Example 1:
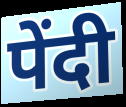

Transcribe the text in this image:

पेंदी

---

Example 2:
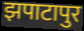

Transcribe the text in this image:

झपाटापुर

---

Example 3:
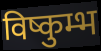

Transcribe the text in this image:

विष्कुम्भ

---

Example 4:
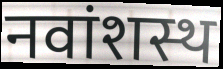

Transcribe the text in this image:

नवांशस्थ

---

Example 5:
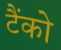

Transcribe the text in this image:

टैंको